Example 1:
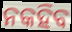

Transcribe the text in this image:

ନକହିବ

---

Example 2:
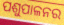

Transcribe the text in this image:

ପଶୁପାଳନର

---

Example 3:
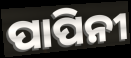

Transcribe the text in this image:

ପାପିନୀ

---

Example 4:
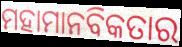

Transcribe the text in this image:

ମହାମାନବିକତାର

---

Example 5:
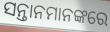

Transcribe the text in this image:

ସନ୍ତାନମାନଙ୍କରେ